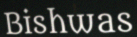
Bishwas